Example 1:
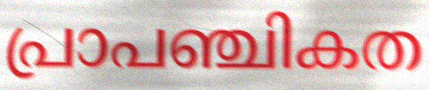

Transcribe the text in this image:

പ്രാപഞ്ചികത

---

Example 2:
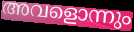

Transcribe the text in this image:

അവളൊന്നും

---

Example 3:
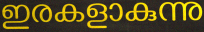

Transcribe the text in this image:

ഇരകളാകുന്നു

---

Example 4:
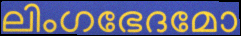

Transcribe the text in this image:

ലിംഗഭേദമോ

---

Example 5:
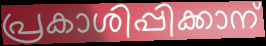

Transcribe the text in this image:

പ്രകാശിപ്പിക്കാന്